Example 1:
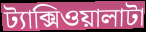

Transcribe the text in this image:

ট্যাক্সিওয়ালাটা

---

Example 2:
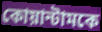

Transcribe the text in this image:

কোয়ান্টামকে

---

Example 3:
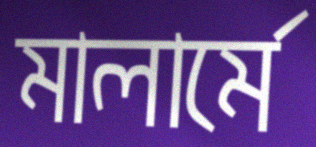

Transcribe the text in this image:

মালার্মে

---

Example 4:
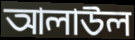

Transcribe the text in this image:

আলাউল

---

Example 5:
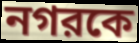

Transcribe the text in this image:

নগরকে